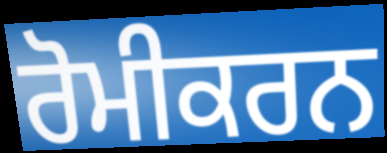
ਰੋਮੀਕਰਨ